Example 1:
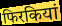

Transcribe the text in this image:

फिरकियां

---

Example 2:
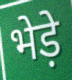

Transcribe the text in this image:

भेड़े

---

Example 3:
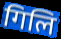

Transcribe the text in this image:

गिलि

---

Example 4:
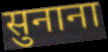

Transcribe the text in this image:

सुनाना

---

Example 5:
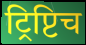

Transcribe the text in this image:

ट्रिप्टिच